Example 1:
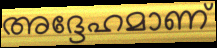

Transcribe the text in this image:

അദ്ദേഹമാണ്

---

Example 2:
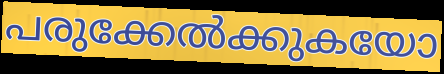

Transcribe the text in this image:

പരുക്കേൽക്കുകയോ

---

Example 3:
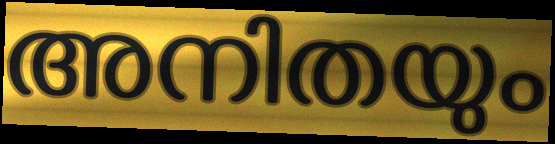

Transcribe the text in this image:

അനിതയും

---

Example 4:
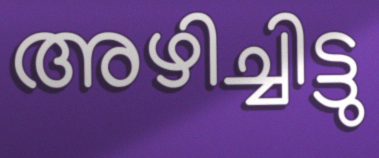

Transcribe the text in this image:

അഴിച്ചിട്ടു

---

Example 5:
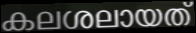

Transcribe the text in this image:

കലശലായത്